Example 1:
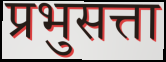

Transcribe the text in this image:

प्रभुसत्ता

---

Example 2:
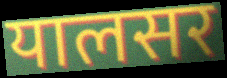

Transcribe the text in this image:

यालसर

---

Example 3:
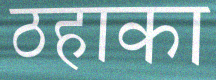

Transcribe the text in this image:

ठहाका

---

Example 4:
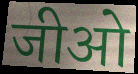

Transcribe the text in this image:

जीओ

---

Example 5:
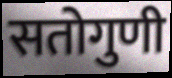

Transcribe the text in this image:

सतोगुणी